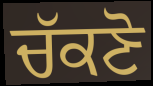
ਚੱਕਣੋ